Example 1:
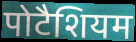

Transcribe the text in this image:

पोटैशियम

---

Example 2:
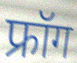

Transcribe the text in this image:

फ्रॉग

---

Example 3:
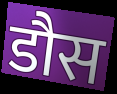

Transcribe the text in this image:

डौस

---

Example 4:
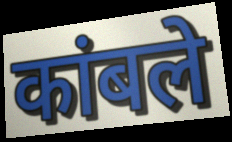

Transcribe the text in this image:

कांबले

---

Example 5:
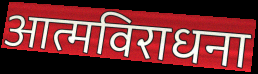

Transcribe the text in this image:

आत्मविराधना